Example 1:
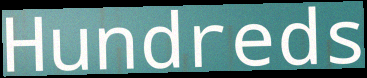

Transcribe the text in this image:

Hundreds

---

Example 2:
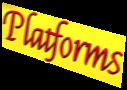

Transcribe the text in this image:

Platforms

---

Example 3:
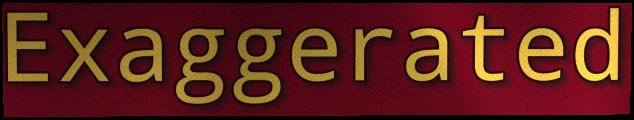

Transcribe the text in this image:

Exaggerated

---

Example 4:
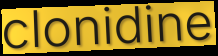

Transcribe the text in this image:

clonidine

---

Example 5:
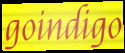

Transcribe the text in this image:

goindigo